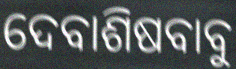
ଦେବାଶିଷବାବୁ